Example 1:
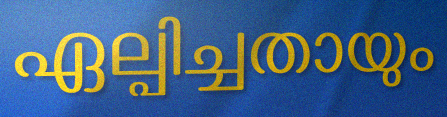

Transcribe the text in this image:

ഏല്പിച്ചതായും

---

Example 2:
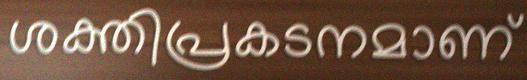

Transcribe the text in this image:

ശക്തിപ്രകടനമാണ്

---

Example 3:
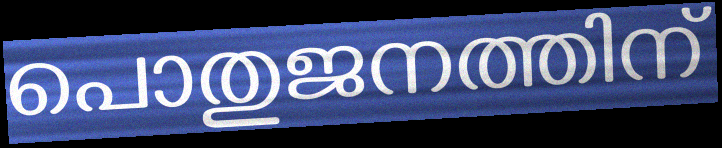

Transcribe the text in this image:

പൊതുജനത്തിന്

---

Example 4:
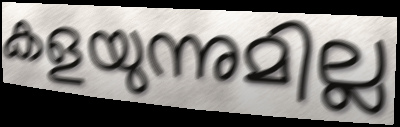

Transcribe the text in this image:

കളയുന്നുമില്ല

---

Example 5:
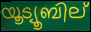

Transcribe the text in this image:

യൂട്യൂബില്